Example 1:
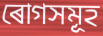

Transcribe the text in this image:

ৰোগসমূহ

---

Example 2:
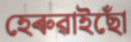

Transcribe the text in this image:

হেৰুৱাইছোঁ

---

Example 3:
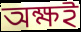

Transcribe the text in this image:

অক্ষই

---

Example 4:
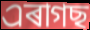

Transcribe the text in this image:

এৰাগছ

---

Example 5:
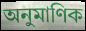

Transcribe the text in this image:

অনুমাণিক